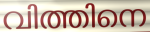
വിത്തിനെ